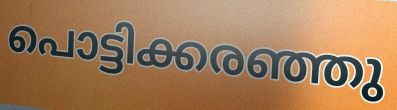
പൊട്ടിക്കരഞ്ഞു